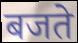
बजते